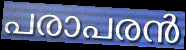
പരാപരൻ